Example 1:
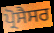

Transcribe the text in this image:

ਪ੍ਰੋਸੈਸਰ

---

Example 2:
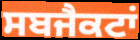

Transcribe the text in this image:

ਸਬਜੈਕਟਾਂ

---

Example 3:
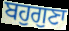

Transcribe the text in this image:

ਬਹੁਗੁਣਾ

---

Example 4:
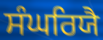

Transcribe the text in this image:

ਸੰਘਰਿਯੈ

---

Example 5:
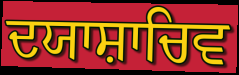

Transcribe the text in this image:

ਦਯਾਸ਼ਾਚਿਵ